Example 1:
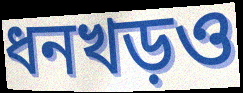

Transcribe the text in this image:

ধনখড়ও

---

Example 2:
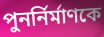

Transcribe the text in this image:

পুনর্নির্মাণকে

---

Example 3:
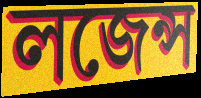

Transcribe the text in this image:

লজেন্স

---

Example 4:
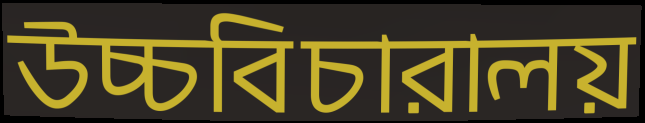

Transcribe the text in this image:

উচ্চবিচারালয়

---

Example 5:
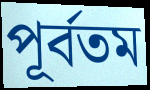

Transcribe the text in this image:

পূর্বতম